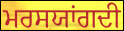
ਮਰਸਯਾਂਗਦੀ